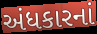
અંધકારનાં